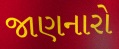
જાણનારો